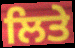
ਲਿਤੇ